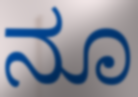
ನೂ